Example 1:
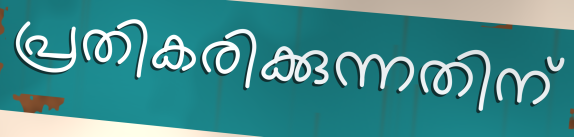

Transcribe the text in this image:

പ്രതികരിക്കുന്നതിന്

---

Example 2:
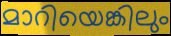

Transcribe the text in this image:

മാറിയെങ്കിലും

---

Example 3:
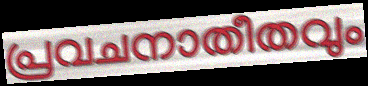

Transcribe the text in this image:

പ്രവചനാതീതവും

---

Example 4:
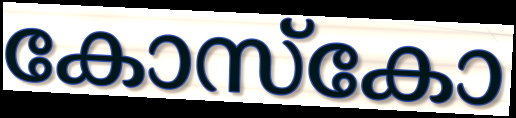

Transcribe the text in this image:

കോസ്കോ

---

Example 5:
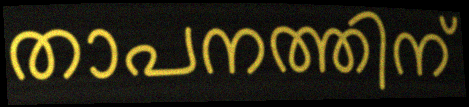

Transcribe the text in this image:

താപനത്തിന്